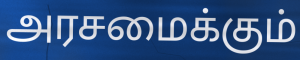
அரசமைக்கும்